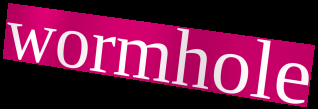
wormhole